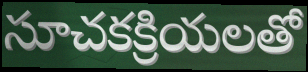
సూచకక్రియలతో